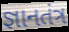
જ્ઞાનતંત્ર